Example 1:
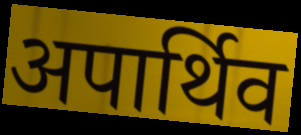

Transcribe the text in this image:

अपार्थिव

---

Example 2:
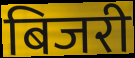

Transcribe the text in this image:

बिजरी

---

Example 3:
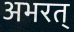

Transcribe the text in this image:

अभरत्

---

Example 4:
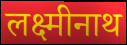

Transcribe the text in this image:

लक्ष्मीनाथ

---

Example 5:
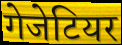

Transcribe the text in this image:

गेजेटियर